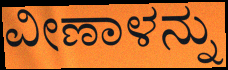
ವೀಣಾಳನ್ನು